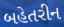
બહેતરીન